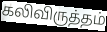
கலிவிருத்தம்